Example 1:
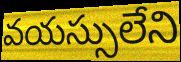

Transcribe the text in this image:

వయస్సులేని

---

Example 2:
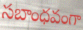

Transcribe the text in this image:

సబాంధవంగా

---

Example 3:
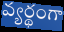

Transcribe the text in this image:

వ్యర్థంగా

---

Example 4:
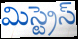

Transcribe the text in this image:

మిస్ట్రెస్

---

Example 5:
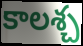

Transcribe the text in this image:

కాలశ్చ